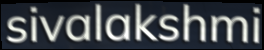
sivalakshmi